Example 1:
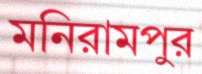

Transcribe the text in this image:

মনিরামপুর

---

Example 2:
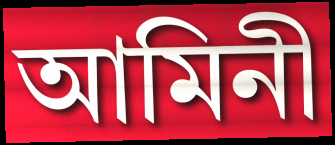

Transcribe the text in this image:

আমিনী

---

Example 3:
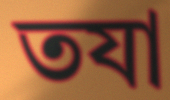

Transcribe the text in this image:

তযা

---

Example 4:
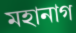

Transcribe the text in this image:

মহানাগ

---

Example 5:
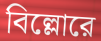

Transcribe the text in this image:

বিল্লোরে